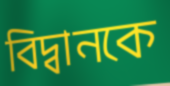
বিদ্বানকে